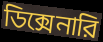
ডিক্সেনারি